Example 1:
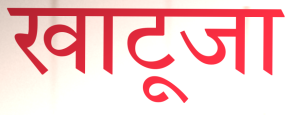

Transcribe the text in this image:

खाटूजा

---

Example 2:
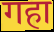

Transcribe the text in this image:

गहा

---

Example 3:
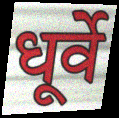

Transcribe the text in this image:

धूर्वे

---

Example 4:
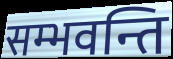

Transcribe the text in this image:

सम्भवन्ति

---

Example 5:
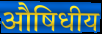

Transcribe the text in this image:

औषिधीय